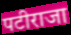
पटीराजा